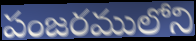
పంజరములోని